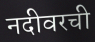
नदीवरची